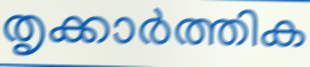
തൃക്കാർത്തിക